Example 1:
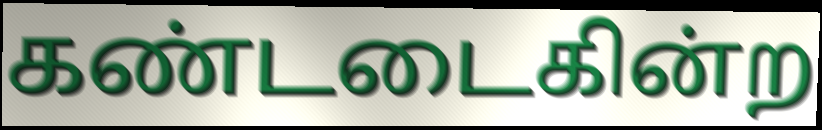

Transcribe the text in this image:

கண்டடைகின்ற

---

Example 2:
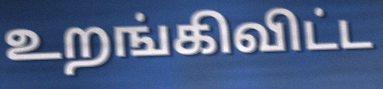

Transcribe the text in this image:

உறங்கிவிட்ட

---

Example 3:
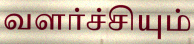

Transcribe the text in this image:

வளர்ச்சியும்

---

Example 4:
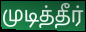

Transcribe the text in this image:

முடித்தீர்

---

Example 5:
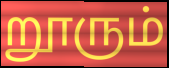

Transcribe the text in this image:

றூரும்